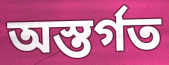
অস্তর্গত